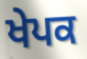
ਖੇਪਕ